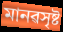
মানৱসৃষ্ট